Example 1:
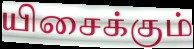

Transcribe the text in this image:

யிசைக்கும்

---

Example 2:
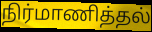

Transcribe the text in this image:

நிர்மாணித்தல்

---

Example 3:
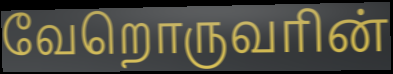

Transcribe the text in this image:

வேறொருவரின்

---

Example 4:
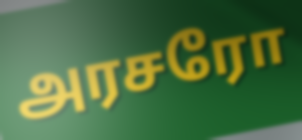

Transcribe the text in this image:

அரசரோ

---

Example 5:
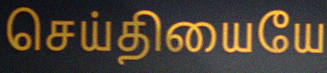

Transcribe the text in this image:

செய்தியையே